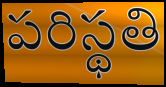
పరిస్థతి